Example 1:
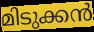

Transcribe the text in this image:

മിടുക്കൻ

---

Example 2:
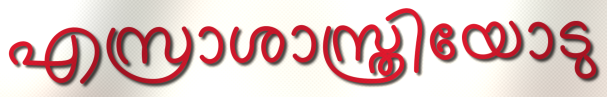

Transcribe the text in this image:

എസ്രാശാസ്ത്രിയോടു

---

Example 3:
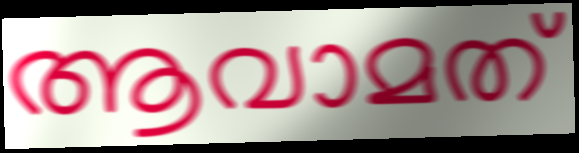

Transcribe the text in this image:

ആവാമത്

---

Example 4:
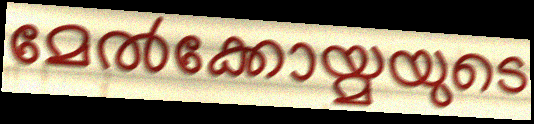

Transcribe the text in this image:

മേൽക്കോയ്മയുടെ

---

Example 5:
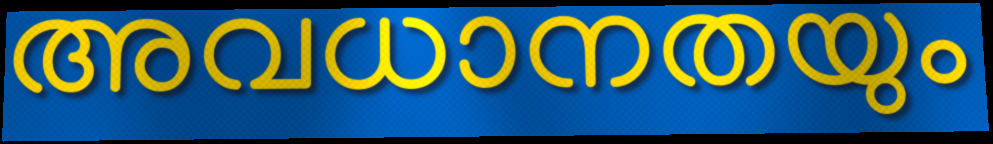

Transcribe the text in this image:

അവധാനതയും